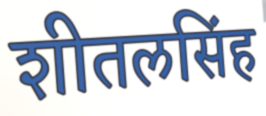
शीतलसिंह